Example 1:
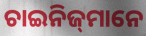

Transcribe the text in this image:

ଚାଇନିଜ୍‍ମାନେ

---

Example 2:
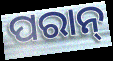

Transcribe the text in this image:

ପରାନ୍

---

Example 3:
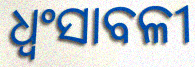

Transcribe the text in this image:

ଧ୍ୱଂସାବଳୀ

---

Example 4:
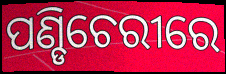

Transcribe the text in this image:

ପଣ୍ଡିଚେରୀରେ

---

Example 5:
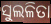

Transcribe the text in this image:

ସୁଲଳିତା